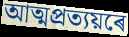
আত্মপ্ৰত্যয়ৰে